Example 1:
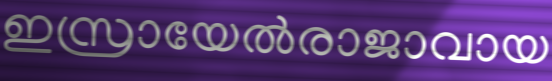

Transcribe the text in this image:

ഇസ്രായേൽരാജാവായ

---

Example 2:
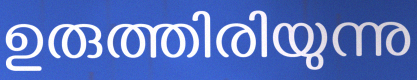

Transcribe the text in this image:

ഉരുത്തിരിയുന്നു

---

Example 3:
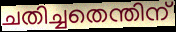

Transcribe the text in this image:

ചതിച്ചതെന്തിന്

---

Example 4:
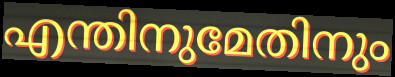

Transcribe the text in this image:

എന്തിനുമേതിനും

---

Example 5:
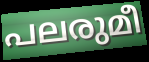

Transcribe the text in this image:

പലരുമീ